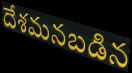
దేశమనబడిన